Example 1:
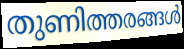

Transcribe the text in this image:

തുണിത്തരങ്ങൾ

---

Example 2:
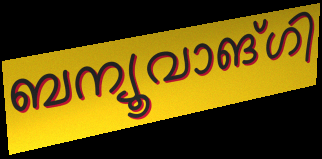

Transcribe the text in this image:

ബന്യൂവാങ്ഗി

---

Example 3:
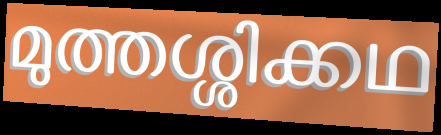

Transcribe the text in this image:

മുത്തശ്ശിക്കഥ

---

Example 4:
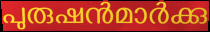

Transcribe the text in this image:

പുരുഷൻമാർക്കു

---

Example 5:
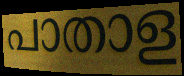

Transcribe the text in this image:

പാതാള